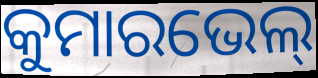
କୁମାରଭେଲ୍